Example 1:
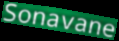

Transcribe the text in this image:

Sonavane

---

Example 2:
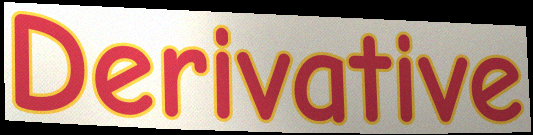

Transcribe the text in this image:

Derivative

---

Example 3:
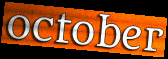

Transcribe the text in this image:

october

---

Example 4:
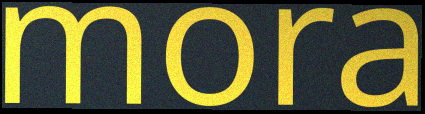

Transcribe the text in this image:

mora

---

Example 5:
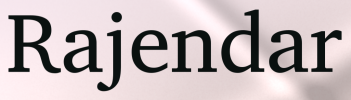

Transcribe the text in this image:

Rajendar